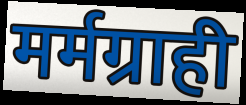
मर्मग्राही